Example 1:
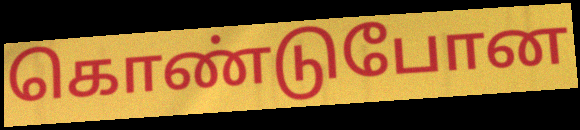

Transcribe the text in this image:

கொண்டுபோன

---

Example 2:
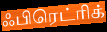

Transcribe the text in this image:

ஃபிரெட்ரிக்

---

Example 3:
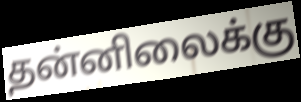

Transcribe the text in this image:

தன்னிலைக்கு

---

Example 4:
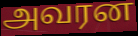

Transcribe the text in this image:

அவரன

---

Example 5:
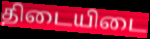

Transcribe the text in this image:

திடையிடை